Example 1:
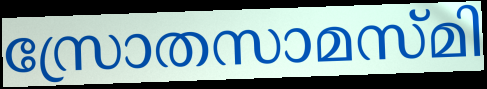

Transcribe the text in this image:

സ്രോതസാമസ്മി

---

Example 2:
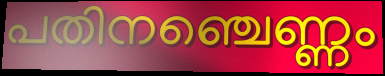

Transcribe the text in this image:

പതിനഞ്ചെണ്ണം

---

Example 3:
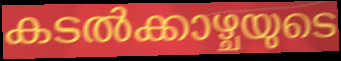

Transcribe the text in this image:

കടൽക്കാഴ്ചയുടെ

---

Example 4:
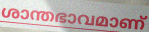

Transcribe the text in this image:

ശാന്തഭാവമാണ്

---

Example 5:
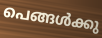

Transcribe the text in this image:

പെങ്ങൾക്കു